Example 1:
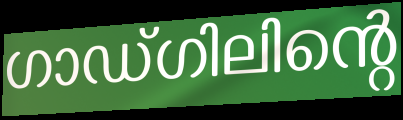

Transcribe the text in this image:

ഗാഡ്ഗിലിന്റെ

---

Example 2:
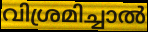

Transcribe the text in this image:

വിശ്രമിച്ചാൽ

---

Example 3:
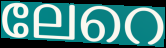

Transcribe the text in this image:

ലേറെ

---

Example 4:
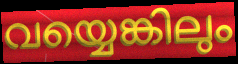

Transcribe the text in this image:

വയ്യെങ്കിലും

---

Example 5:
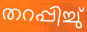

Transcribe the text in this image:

തറപ്പിച്ചു്